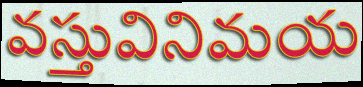
వస్తువినిమయ